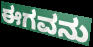
ಈಗವನು